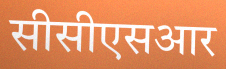
सीसीएसआर